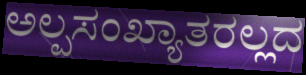
ಅಲ್ಪಸಂಖ್ಯಾತರಲ್ಲದ